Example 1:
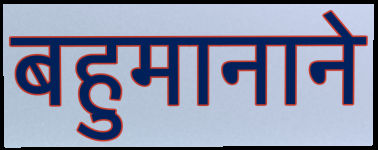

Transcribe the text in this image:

बहुमानाने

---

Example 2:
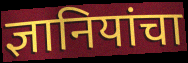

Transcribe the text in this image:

ज्ञानियांचा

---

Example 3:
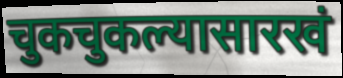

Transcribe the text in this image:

चुकचुकल्यासारखं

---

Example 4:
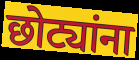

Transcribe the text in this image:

छोट्यांना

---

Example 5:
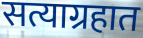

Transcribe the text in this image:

सत्याग्रहात